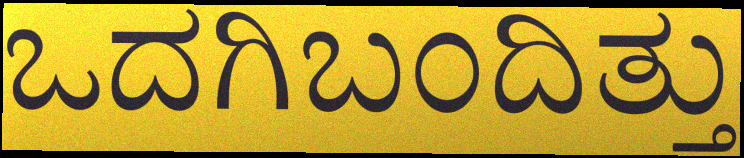
ಒದಗಿಬಂದಿತ್ತು